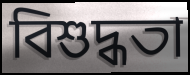
বিশুদ্ধতা